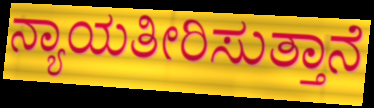
ನ್ಯಾಯತೀರಿಸುತ್ತಾನೆ